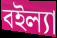
বইল্যা